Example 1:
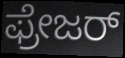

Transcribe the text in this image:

ಫ್ರೇಜರ್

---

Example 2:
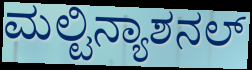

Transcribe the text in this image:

ಮಲ್ಟಿನ್ಯಾಶನಲ್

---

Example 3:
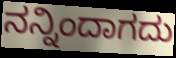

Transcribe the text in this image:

ನನ್ನಿಂದಾಗದು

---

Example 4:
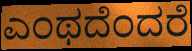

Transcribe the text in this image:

ಎಂಥದೆಂದರೆ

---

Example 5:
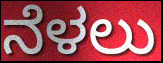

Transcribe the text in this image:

ನೆಳಲು